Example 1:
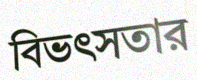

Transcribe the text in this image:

বিভৎসতার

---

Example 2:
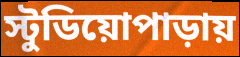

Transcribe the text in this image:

স্টুডিয়োপাড়ায়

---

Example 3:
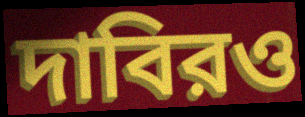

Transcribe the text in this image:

দাবিরও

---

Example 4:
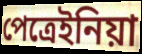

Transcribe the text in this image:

পেত্রেইনিয়া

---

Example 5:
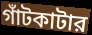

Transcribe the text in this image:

গাঁটকাটার